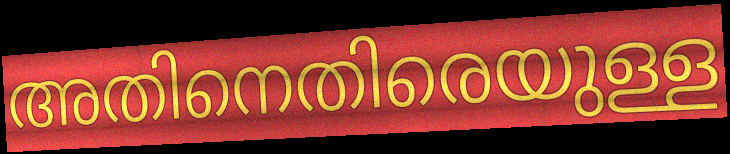
അതിനെതിരെയുള്ള